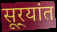
सूर्यांत